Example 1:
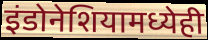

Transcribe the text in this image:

इंडोनेशियामध्येही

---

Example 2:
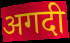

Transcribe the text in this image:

अगदी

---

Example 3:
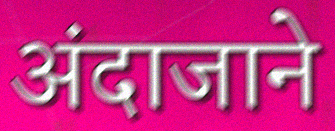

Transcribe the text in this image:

अंदाजाने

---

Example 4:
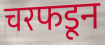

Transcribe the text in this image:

चरफडून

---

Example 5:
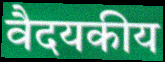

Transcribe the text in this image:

वैदयकीय